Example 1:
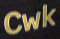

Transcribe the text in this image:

Cwk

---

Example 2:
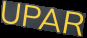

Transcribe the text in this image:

UPAR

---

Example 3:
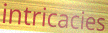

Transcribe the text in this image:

intricacies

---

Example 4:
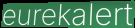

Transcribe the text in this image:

eurekalert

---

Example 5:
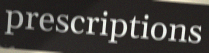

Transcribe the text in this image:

prescriptions